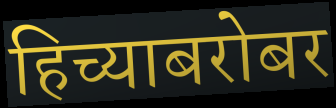
हिच्याबरोबर